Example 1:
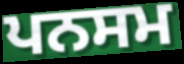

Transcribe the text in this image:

ਪਨਸਮ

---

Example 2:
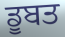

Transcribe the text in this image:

ਡੂਬਤ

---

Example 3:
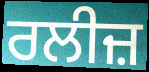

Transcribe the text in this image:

ਰਲੀਜ਼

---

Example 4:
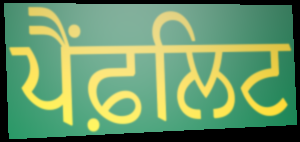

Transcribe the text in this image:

ਪੈਂਫ਼ਲਿਟ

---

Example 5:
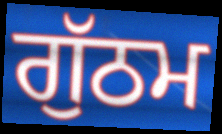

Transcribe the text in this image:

ਗੁੱਠਮ